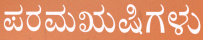
ಪರಮಋಷಿಗಳು